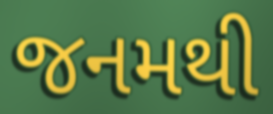
જનમથી